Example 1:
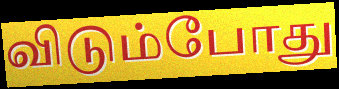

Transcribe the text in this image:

விடும்போது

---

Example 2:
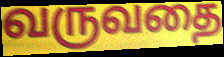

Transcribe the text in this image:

வருவதை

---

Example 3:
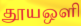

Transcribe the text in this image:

தூயஒளி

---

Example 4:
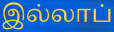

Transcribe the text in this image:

இல்லாப்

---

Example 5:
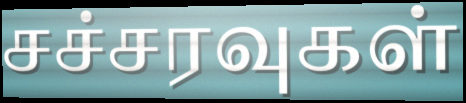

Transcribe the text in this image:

சச்சரவுகள்